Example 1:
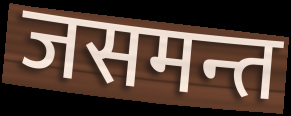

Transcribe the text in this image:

जसमन्त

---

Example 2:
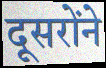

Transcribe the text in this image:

दूसरोंने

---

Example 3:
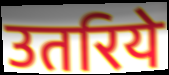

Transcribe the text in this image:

उतरिये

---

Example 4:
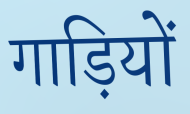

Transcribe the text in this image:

गाड़ियों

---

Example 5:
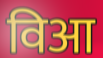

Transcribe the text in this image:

विआ